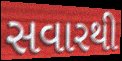
સવારથી